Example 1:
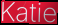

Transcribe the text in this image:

Katie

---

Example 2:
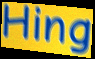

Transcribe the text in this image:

Hing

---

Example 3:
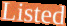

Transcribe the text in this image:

Listed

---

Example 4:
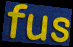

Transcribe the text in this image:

fus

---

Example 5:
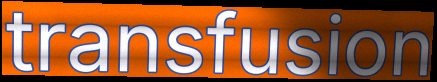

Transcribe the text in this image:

transfusion